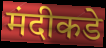
मंदीकडे